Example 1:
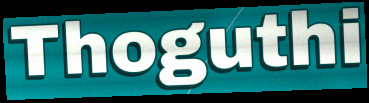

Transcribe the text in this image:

Thoguthi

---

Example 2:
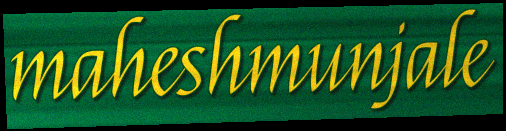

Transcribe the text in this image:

maheshmunjale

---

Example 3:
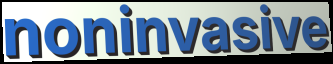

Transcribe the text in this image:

noninvasive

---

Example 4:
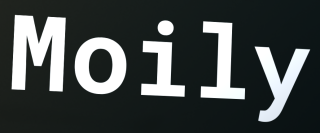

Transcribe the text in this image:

Moily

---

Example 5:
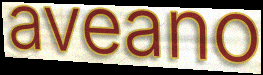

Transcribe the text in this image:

aveano